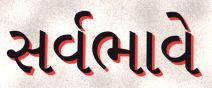
સર્વભાવે